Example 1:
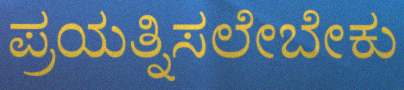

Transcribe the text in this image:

ಪ್ರಯತ್ನಿಸಲೇಬೇಕು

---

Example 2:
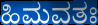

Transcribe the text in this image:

ಹಿಮವತಃ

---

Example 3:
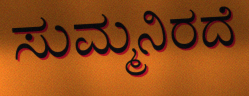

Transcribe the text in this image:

ಸುಮ್ಮನಿರದೆ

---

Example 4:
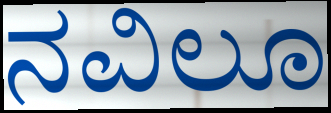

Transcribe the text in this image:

ನವಿಲೂ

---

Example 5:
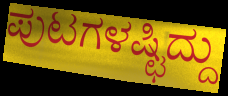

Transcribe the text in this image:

ಪುಟಗಳಷ್ಟಿದ್ದು